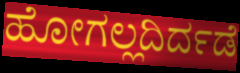
ಹೋಗಲ್ಲದಿರ್ದಡೆ